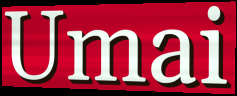
Umai